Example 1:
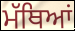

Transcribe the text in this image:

ਮੱਥਿਆਂ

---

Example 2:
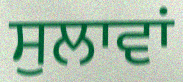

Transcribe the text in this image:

ਸੁਲਾਵਾਂ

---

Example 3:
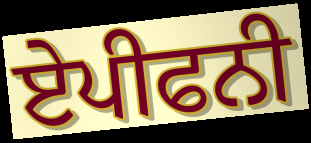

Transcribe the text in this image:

ਏਪੀਫਨੀ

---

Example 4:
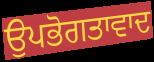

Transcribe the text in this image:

ਉਪਭੋਗਤਾਵਾਦ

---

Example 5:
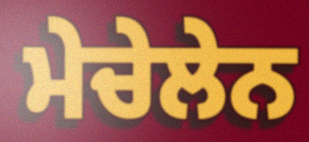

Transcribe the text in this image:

ਮੇਚੇਲੇਨ